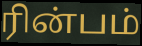
ரின்பம்